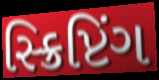
સ્ક્રિપ્ટિંગ